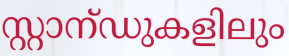
സ്റ്റാന്ഡുകളിലും